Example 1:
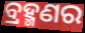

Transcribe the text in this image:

ବ୍ରହ୍ମଣର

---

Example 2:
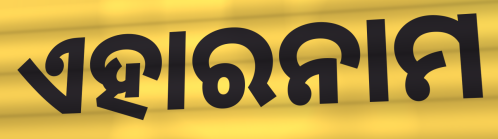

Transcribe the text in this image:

ଏହାରନାମ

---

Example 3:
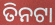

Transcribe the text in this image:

ତିନଟା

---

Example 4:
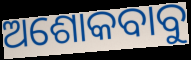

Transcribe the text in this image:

ଅଶୋକବାବୁ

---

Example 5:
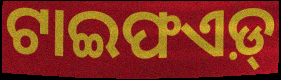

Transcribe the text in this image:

ଟାଇଫଏଡ଼୍